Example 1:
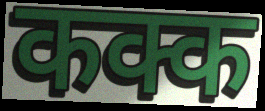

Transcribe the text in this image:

कक्क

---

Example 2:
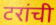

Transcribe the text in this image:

टरांची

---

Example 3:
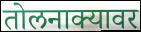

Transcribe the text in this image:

तोलनाक्यावर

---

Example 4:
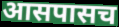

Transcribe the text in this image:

आसपासच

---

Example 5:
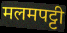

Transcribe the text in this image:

मलमपट्टी